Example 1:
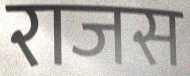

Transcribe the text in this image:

राजस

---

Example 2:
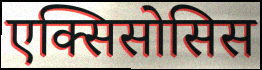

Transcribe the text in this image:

एक्सिसोसिस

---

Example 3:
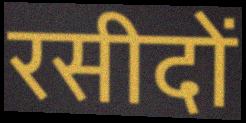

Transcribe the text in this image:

रसीदों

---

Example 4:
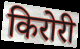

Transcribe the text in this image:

किरोरी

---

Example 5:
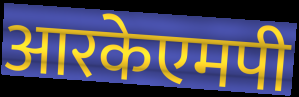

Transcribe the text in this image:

आरकेएमपी